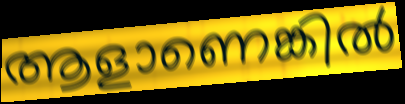
ആളാണെങ്കിൽ